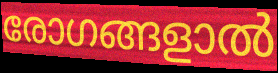
രോഗങ്ങളാൽ